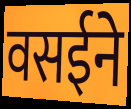
वसईने